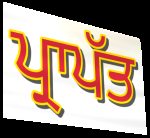
ਪ੍ਰਾਪੱਤ